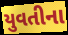
યુવતીના